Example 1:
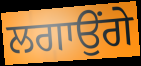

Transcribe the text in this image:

ਲਗਾਉਂਗੇ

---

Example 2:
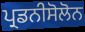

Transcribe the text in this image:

ਪ੍ਰਡਨੀਸੋਲੋਨ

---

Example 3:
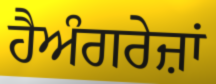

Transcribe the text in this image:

ਹੈਅੰਗਰੇਜ਼ਾਂ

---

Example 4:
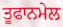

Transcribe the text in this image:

ਤੂਫਾਨਮੇਲ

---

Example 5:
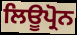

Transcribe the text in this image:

ਲਿਊਪ੍ਰੋਨ